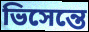
ভিসেন্তে